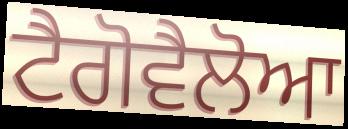
ਟੈਗੋਵੈਲੋਆ